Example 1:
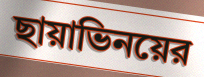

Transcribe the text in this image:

ছায়াভিনয়ের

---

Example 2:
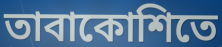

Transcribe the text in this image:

তাবাকোশিতে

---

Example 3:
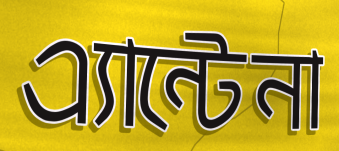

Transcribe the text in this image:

এ্যান্টেনা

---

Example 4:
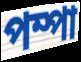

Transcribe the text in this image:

পম্পা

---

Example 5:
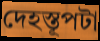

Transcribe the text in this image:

দেহস্তূপটা